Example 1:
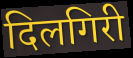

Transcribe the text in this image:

दिलगिरी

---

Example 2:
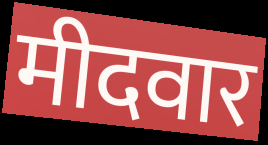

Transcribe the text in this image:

मीदवार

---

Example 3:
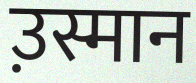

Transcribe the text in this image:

उ़स्मान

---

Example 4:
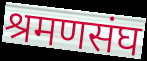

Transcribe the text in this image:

श्रमणसंघ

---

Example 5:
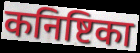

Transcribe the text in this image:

कनिष्टिका